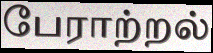
பேராற்றல்